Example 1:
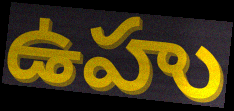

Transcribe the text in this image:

ఉహు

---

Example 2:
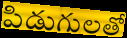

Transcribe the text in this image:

పిడుగులతో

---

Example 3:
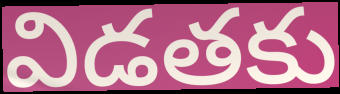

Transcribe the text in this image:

విడతకు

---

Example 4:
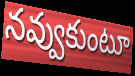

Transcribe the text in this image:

నవ్వుకుంటూ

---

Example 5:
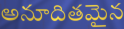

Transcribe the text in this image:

అనూదితమైన